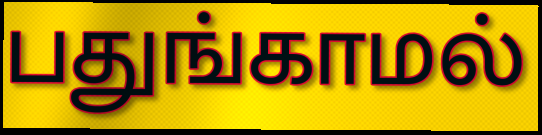
பதுங்காமல்